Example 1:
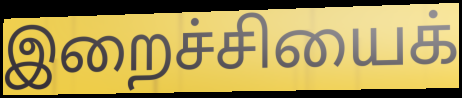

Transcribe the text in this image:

இறைச்சியைக்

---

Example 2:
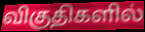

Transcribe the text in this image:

விகுதிகளில்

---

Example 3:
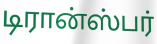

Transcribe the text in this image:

டிரான்ஸ்பர்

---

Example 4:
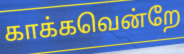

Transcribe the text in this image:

காக்கவென்றே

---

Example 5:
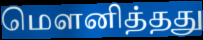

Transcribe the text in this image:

மௌனித்தது